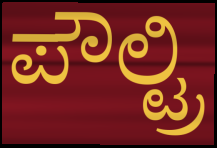
ಪೌಲ್ಟ್ರಿ